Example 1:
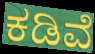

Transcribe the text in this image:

ಕಡಿವೆ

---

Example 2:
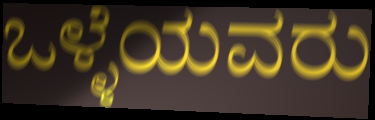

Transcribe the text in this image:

ಒಳ್ಳೆಯವರು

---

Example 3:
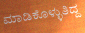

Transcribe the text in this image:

ಮಾಡಿಕೊಳ್ಳುತಿದ್ದ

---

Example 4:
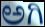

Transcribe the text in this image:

ಅಗಿ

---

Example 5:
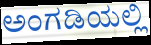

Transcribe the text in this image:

ಅಂಗಡಿಯಲ್ಲಿ